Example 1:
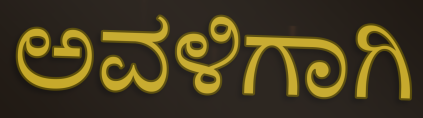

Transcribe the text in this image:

ಅವಳಿಗಾಗಿ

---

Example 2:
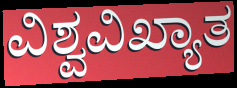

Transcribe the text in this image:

ವಿಶ್ವವಿಖ್ಯಾತ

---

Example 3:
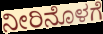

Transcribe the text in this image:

ನೀರಿನೊಳಗೆ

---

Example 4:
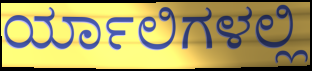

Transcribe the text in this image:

ರ್ಯಾಲಿಗಳಲ್ಲಿ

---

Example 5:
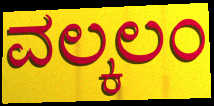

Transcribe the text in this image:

ವಲ್ಕಲಂ